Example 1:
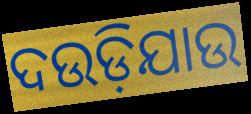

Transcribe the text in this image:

ଦଉଡ଼ିଯାଉ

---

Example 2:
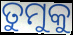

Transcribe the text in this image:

ତୁମୁକୁ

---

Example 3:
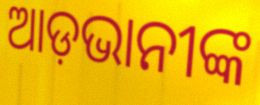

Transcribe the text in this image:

ଆଡ଼ଭାନୀଙ୍କ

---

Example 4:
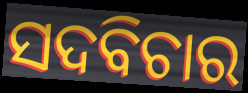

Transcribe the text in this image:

ସଦବିଚାର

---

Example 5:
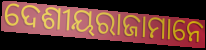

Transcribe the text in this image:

ଦେଶୀୟରାଜାମାନେ